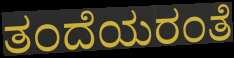
ತಂದೆಯರಂತೆ